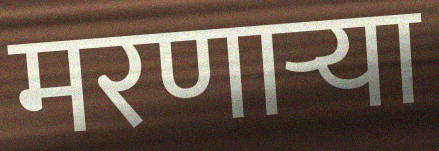
मरणार्‍या